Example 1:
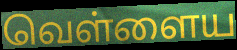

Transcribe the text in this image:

வெள்ளைய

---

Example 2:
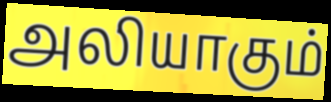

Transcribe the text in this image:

அலியாகும்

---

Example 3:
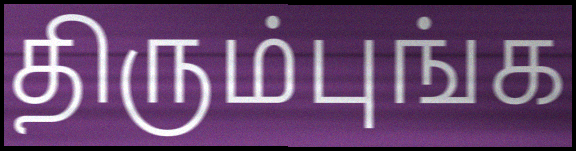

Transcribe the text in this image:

திரும்புங்க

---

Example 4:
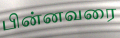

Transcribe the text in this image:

பின்னவரை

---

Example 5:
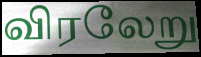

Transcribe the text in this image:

விரலேறு